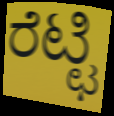
ರೆಟ್ಟಿ